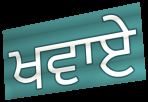
ਖਵਾਏ